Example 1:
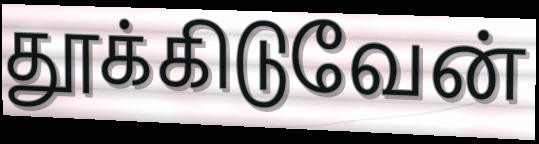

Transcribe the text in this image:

தூக்கிடுவேன்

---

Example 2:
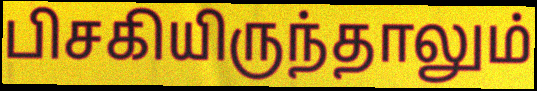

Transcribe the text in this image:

பிசகியிருந்தாலும்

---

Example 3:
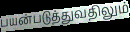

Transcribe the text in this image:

பயன்படுத்துவதிலும்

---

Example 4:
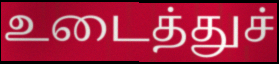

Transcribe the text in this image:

உடைத்துச்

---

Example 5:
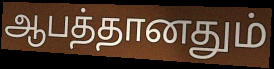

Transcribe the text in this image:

ஆபத்தானதும்